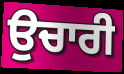
ਉਚਾਰੀ